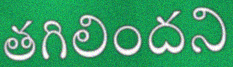
తగిలిందని